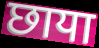
छाया